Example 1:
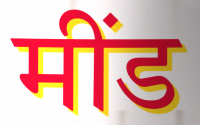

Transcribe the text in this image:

मींड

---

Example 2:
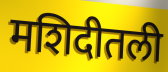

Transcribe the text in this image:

मशिदीतली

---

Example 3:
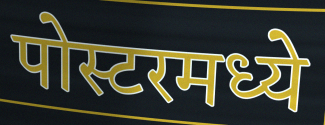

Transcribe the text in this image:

पोस्टरमध्ये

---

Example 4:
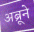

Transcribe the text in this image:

अब्रूने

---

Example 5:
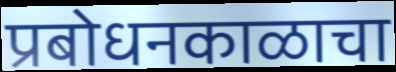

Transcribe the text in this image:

प्रबोधनकाळाचा